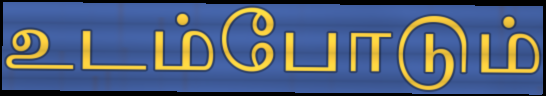
உடம்போடும்